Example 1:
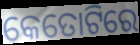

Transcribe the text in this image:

କେତୋଟିରେ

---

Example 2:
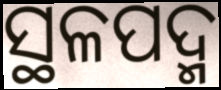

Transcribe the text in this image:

ସ୍ଥଳପଦ୍ମ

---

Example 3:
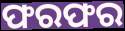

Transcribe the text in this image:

ଫରଫର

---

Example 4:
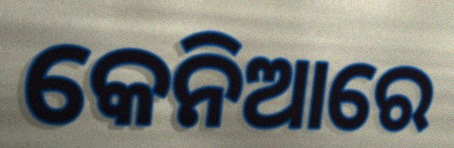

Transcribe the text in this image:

କେନିଆରେ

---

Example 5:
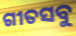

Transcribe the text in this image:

ଗୀତସବୁ